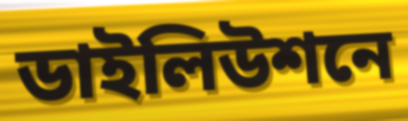
ডাইলিউশনে